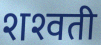
शश्वती